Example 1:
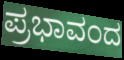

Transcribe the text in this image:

ಪ್ರಭಾವಂದ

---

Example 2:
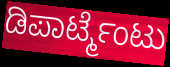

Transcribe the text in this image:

ಡಿಪಾರ್ಟ್ಮೆಂಟು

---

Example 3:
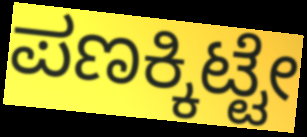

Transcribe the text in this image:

ಪಣಕ್ಕಿಟ್ಟೇ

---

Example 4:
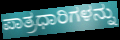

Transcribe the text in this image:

ಪಾತ್ರಧಾರಿಗಳನ್ನು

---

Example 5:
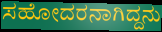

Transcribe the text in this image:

ಸಹೋದರನಾಗಿದ್ದನು